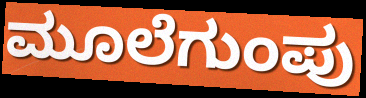
ಮೂಲೆಗುಂಪು